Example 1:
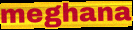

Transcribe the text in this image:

meghana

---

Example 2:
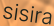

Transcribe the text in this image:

sisira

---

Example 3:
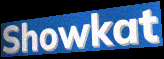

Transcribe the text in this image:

Showkat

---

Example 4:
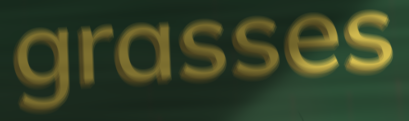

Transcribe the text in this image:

grasses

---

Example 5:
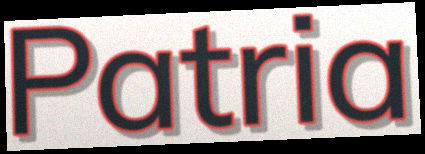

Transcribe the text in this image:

Patria